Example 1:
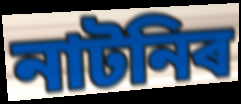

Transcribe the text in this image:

নাটনিৰ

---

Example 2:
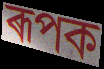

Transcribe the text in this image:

ৰূপক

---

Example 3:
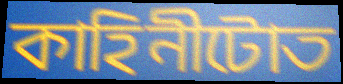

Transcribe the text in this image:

কাহিনীটোত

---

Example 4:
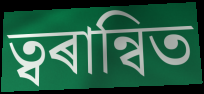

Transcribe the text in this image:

ত্বৰান্বিত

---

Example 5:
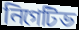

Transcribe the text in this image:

নিগেটিভ